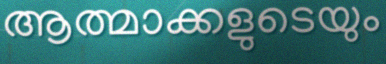
ആത്മാക്കളുടെയും